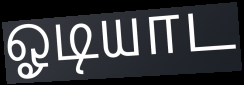
ஓடியாட